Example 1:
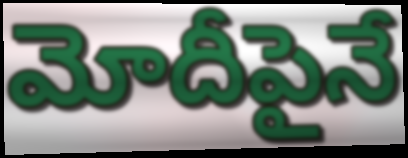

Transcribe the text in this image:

మోదీపైనే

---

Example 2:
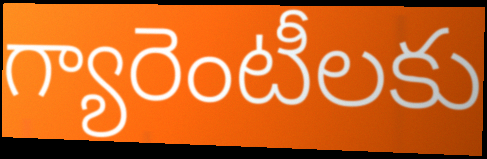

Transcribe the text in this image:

గ్యారెంటీలకు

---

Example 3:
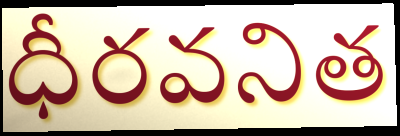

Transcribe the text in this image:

ధీరవనిత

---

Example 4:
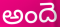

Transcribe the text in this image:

అందె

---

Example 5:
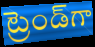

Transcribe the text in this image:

ట్రెండ్‌గా